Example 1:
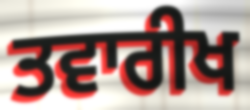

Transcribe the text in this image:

ਤਵਾਰੀਖ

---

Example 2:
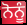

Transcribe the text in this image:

ਨੋਨੂੰ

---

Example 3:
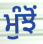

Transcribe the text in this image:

ਮੁੰਝੋਂ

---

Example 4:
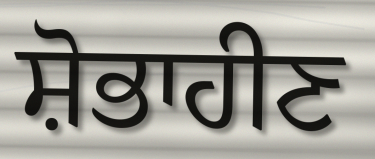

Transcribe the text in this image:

ਸ਼ੋਭਾਹੀਣ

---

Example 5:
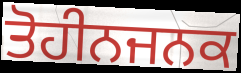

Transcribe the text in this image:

ਤੋਹੀਨਜਨਕ